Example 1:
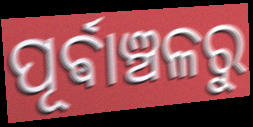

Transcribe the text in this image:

ପୂର୍ଵାଞ୍ଚଳରୁ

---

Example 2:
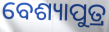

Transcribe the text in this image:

ବେଶ୍ୟାପୁତ୍ର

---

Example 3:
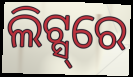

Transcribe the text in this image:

ଲିଟ୍ସ୍‌ରେ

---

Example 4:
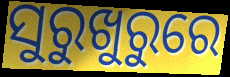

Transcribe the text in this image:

ସୁରୁଖୁରୁରେ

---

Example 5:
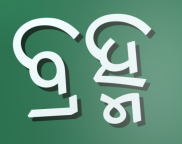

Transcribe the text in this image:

ବ୍ରହ୍ମ